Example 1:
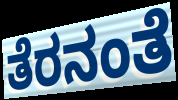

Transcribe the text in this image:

ತೆರನಂತೆ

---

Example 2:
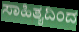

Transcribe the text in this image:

ಸಾಹಿತ್ಯದಿಂದ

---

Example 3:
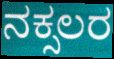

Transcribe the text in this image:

ನಕ್ಸಲರ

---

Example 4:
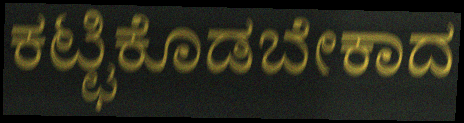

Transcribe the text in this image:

ಕಟ್ಟಿಕೊಡಬೇಕಾದ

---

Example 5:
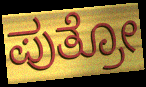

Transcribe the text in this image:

ಪುತ್ರೋ